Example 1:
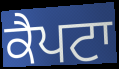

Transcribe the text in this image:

ਕੈਪਟਾ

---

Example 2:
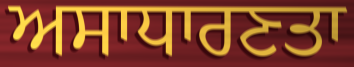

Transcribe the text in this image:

ਅਸਾਧਾਰਣਤਾ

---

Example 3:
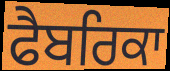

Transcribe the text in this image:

ਫੈਬਰਿਕਾ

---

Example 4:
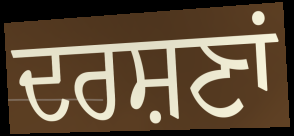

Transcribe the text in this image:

ਦਰਸ਼ਣਾਂ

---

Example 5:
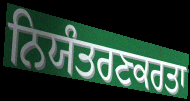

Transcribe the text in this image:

ਨਿਯੰਤਰਣਕਰਤਾ